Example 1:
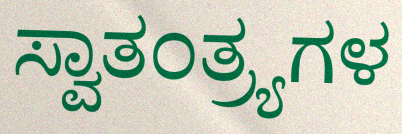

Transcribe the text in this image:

ಸ್ವಾತಂತ್ರ್ಯಗಳ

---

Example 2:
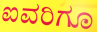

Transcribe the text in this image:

ಐವರಿಗೂ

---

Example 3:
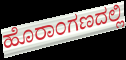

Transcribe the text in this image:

ಹೊರಾಂಗಣದಲ್ಲಿ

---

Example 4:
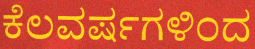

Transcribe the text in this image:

ಕೆಲವರ್ಷಗಳಿಂದ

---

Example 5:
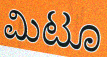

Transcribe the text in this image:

ಮಿಟೂ